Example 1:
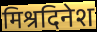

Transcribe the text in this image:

मिश्रदिनेश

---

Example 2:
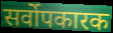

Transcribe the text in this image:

सर्वोपकारक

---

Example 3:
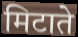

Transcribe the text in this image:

मिटाते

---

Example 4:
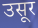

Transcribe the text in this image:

उसूर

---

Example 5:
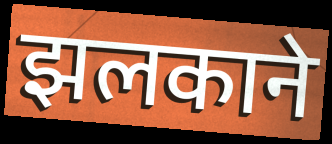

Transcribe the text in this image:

झलकाने